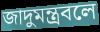
জাদুমন্ত্রবলে